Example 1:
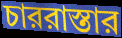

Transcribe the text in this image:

চাররাস্তার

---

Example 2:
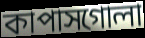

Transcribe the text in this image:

কাপাসগোলা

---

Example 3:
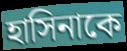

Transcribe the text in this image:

হাসিনাকে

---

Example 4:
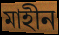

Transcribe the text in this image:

মাহীন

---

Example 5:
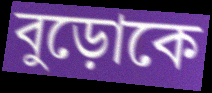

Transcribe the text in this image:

বুড়োকে